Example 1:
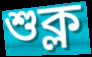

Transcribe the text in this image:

শুক্ল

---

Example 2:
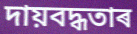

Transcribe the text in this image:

দায়বদ্ধতাৰ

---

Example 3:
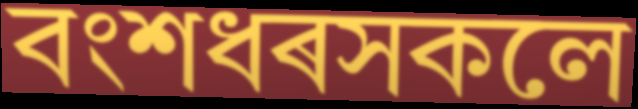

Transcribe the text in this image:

বংশধৰসকলে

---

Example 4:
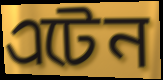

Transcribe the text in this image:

এটেন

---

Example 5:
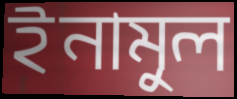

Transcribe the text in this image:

ইনামুল